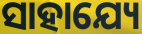
ସାହାଯ୍ୟେ